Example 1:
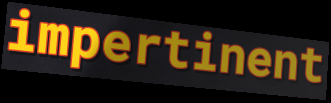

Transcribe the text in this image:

impertinent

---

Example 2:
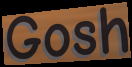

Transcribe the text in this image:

Gosh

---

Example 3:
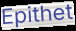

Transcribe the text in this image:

Epithet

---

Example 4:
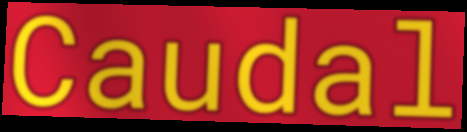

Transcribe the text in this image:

Caudal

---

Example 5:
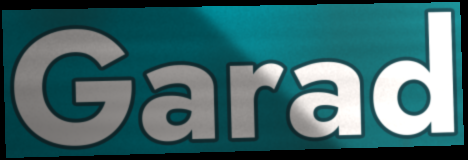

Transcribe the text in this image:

Garad